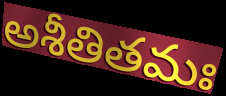
అశీతితమః